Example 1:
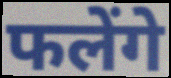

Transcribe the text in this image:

फलेंगे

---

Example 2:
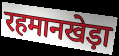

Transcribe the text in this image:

रहमानखेड़ा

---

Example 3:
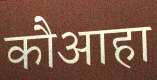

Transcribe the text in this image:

कौआहा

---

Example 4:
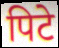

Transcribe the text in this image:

पिटे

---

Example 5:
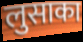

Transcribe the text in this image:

लुसाका